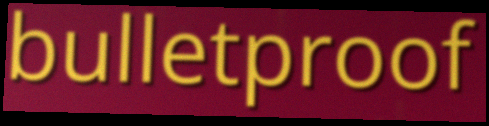
bulletproof